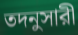
তদনুসারী